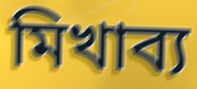
মিখাব্য